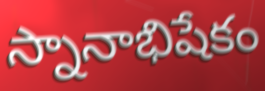
స్నానాభిషేకం